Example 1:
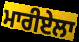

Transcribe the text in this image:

ਮਾਰੀਏਲਾ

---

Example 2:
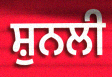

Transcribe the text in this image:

ਸ਼ੁਨਲੀ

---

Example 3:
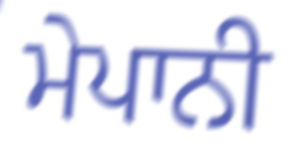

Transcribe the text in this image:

ਮੇਪਾਨੀ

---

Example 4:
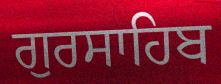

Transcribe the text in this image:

ਗੁਰਸਾਹਿਬ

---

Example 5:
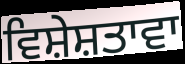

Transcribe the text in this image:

ਵਿਸ਼ੇਸ਼ਤਾਵਾ